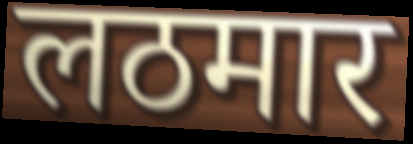
लठमार